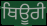
ਥਿਊਰੀ